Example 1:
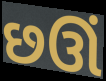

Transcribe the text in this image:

છઊં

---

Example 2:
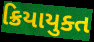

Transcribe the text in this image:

ક્રિયાયુક્ત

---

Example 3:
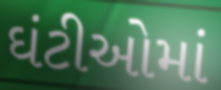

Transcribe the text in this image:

ઘંટીઓમાં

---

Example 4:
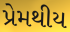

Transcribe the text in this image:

પ્રેમથીય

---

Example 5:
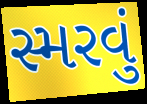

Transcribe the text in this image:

સ્મરવું